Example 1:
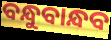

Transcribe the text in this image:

ବନ୍ଧୁବାନ୍ଧବ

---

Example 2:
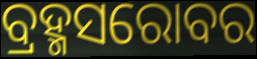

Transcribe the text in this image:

ବ୍ରହ୍ମସରୋବର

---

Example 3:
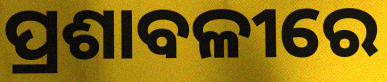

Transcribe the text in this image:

ପ୍ରଶାବଳୀରେ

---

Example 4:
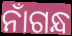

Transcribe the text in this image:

ନାଁଗନ୍ଧ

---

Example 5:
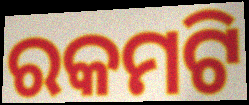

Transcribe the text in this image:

ରକମଟି